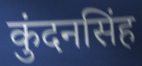
कुंदनसिंह